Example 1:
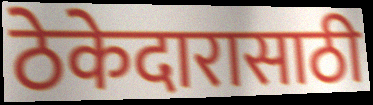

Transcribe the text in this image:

ठेकेदारासाठी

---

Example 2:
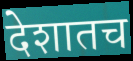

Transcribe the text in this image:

देशातच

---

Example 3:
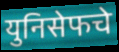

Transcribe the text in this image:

युनिसेफचे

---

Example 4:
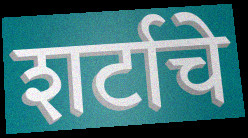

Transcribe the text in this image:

शर्टाचे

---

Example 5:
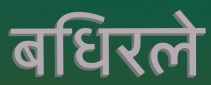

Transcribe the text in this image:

बधिरले